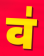
व॑